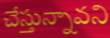
చేస్తున్నావని